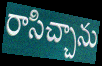
రాసిచ్చాను